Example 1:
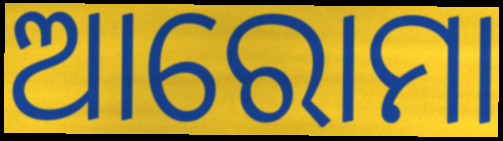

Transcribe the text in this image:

ଆରୋମା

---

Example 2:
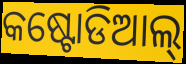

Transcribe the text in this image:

କଷ୍ଟୋଡିଆଲ୍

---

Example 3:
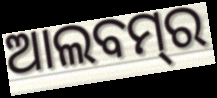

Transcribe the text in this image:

ଆଲବମ୍‌ର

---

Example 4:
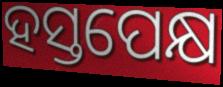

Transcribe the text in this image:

ହସ୍ତପେକ୍ଷ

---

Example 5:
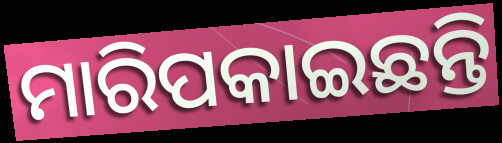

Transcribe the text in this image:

ମାରିପକାଇଛନ୍ତି